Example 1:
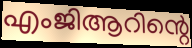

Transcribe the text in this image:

എംജിആറിന്റെ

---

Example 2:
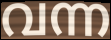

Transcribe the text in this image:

വന്ന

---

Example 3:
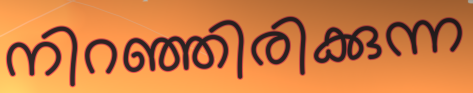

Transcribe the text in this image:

നിറഞ്ഞിരിക്കുന്ന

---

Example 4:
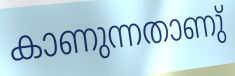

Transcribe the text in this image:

കാണുന്നതാണു്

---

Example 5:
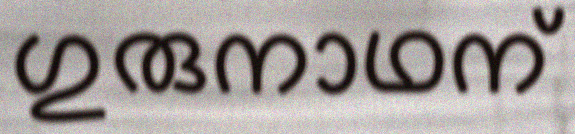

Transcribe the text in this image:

ഗുരുനാഥന്